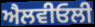
ਐਲਵੀਓਲੀ